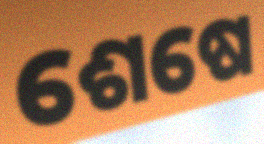
ଶେଷେ